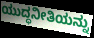
ಯುದ್ಧನೀತಿಯನ್ನು